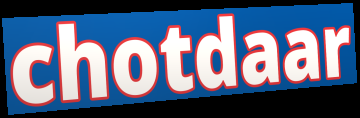
chotdaar